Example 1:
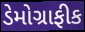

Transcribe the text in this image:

ડેમોગ્રાફીક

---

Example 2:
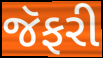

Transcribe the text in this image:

જૅફરી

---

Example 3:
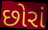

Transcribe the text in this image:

છોરાં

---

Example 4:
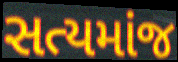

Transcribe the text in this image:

સત્યમાંજ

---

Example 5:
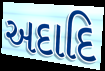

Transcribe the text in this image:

અદાદિ